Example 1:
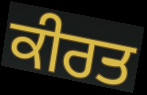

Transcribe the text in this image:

ਕੀਰਤ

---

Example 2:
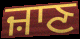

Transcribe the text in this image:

ਜ਼ਾਣ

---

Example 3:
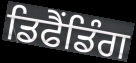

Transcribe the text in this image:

ਡਿਫੈਂਡਿੰਗ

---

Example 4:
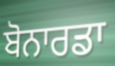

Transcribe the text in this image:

ਬੋਨਾਰਡਾ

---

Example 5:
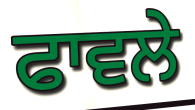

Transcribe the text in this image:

ਫਾਵਲੇ